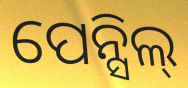
ପେନ୍ସିଲ୍